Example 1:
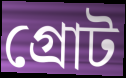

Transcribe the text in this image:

গ্রোট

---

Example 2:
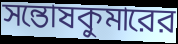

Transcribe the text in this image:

সন্তোষকুমারের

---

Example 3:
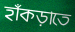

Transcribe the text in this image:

হাঁকড়াতে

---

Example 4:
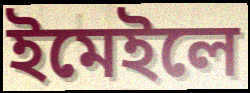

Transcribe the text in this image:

ইমেইলে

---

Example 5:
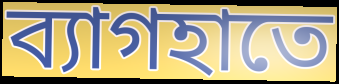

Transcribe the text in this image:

ব্যাগহাতে